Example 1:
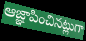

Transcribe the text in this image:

ఆజ్ఞాపించినట్లుగా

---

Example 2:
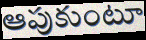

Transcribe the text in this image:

ఆపుకుంటూ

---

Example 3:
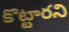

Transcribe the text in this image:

కొట్టారని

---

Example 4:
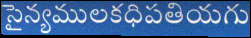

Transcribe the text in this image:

సైన్యములకధిపతియగు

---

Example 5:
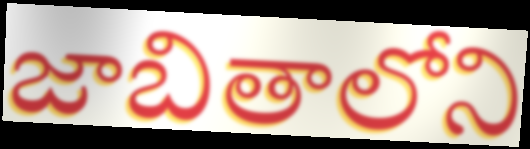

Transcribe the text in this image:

జాబితాలోని